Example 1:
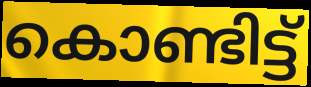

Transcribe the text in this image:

കൊണ്ടിട്ട്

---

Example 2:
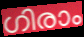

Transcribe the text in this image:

ഗിരാം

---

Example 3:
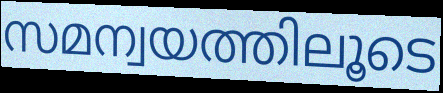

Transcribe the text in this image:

സമന്വയത്തിലൂടെ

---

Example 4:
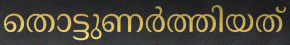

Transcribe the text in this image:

തൊട്ടുണർത്തിയത്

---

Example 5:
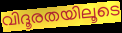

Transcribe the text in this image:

വിദൂരതയിലൂടെ